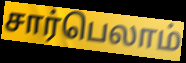
சார்பெலாம்